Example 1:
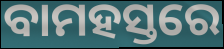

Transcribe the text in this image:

ବାମହସ୍ତରେ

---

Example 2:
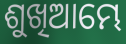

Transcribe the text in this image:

ଶୁଖିଆମ୍ଭେ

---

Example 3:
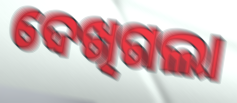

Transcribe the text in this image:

ଦେଖିଗଲା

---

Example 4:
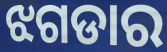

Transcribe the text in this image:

ଝଗଡାର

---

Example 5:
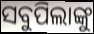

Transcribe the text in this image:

ସବୁପିଲାଙ୍କୁ